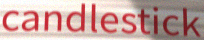
candlestick